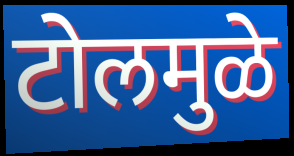
टोलमुळे